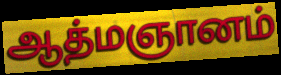
ஆத்மஞானம்